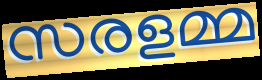
സരളമ്മ